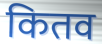
कितव